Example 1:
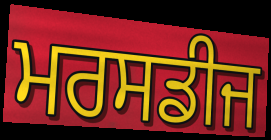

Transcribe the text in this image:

ਮਰਸਡੀਜ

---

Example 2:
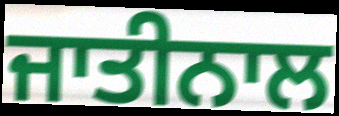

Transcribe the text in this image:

ਜਾਤੀਨਾਲ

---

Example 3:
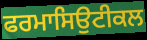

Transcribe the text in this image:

ਫਰਮਾਸਿਉਟੀਕਲ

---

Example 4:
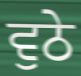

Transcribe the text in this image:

ਵੁਠੇ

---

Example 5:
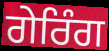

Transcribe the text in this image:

ਗੇਰਿੰਗ